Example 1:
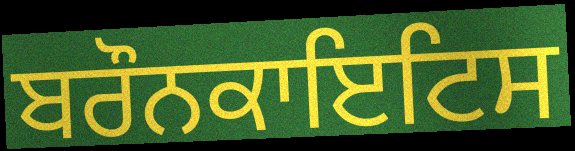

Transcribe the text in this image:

ਬਰੌਨਕਾਇਟਿਸ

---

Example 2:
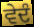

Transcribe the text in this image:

ਵੇਦੰ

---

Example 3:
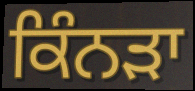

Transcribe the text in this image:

ਕਿੰਨੜਾ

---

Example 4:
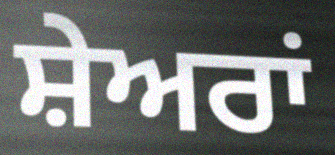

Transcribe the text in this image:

ਸ਼ੇਅਰਾਂ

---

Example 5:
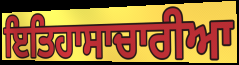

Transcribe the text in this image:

ਇਤਿਹਾਸਾਚਾਰੀਆ